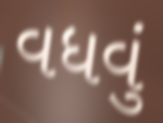
વધવું